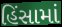
હિંસામાં